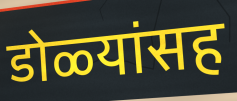
डोळ्यांसह